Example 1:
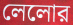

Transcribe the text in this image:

লেলোর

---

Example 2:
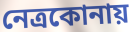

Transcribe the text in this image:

নেত্রকোনায়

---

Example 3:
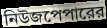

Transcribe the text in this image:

নিউজপেপারের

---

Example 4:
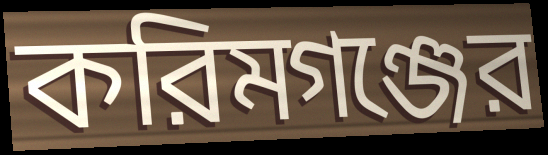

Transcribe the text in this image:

করিমগঞ্জের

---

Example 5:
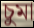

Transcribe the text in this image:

চুমা